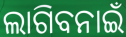
ଲାଗିବନାଇଁ